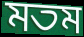
মতম